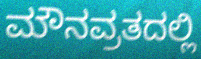
ಮೌನವ್ರತದಲ್ಲಿ